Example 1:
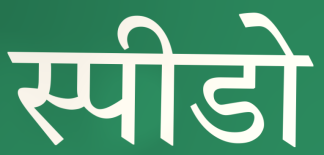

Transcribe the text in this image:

स्पीडो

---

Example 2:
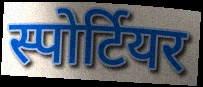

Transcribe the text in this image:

स्पोर्टियर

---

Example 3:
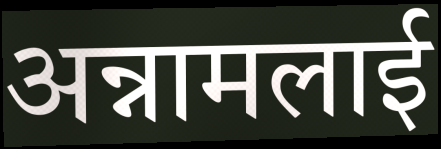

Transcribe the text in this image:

अन्नामलाई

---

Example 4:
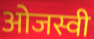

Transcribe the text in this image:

ओजस्वी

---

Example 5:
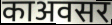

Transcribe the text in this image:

काअवसर